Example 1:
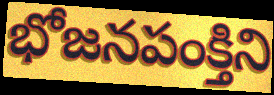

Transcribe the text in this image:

భోజనపంక్తిని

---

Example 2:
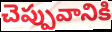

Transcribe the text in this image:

చెప్పువానికి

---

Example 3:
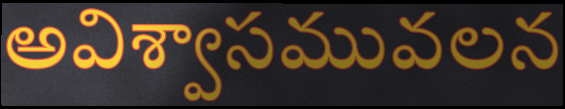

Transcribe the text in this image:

అవిశ్వాసమువలన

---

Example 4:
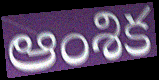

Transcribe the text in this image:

ఆంశిక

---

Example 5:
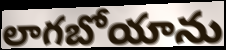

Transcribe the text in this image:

లాగబోయాను